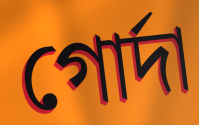
গোর্দা